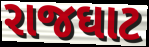
રાજઘાટ